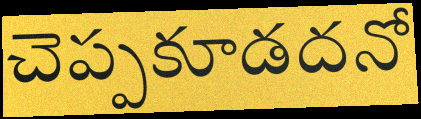
చెప్పకూడదనో